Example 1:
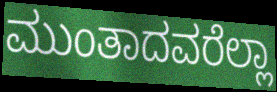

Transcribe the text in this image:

ಮುಂತಾದವರೆಲ್ಲಾ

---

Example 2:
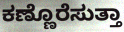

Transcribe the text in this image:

ಕಣ್ಣೊರೆಸುತ್ತಾ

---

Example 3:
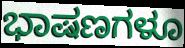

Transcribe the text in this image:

ಭಾಷಣಗಳೂ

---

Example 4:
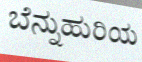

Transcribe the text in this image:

ಬೆನ್ನುಹುರಿಯ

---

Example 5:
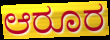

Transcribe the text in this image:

ಆರೂರ